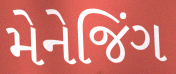
મેનેજિંગ